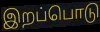
இறப்பொடு